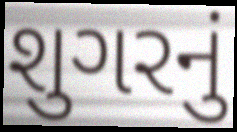
શુગરનું